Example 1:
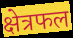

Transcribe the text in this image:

क्षेत्रफल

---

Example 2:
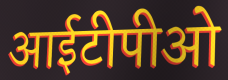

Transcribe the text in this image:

आईटीपीओ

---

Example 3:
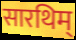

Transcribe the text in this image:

सारथिम्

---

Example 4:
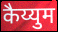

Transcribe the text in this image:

कैय्युम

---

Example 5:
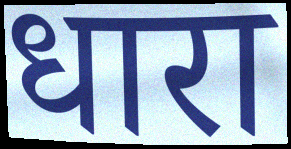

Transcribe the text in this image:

धारा